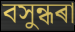
বসুন্ধৰা